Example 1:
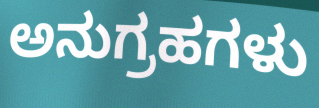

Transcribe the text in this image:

ಅನುಗ್ರಹಗಳು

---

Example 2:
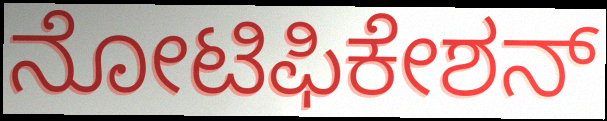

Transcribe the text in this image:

ನೋಟಿಫಿಕೇಶನ್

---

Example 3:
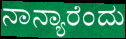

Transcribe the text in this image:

ನಾನ್ಯಾರೆಂದು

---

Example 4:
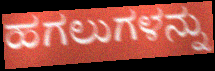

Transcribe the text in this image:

ಹಗಲುಗಳನ್ನು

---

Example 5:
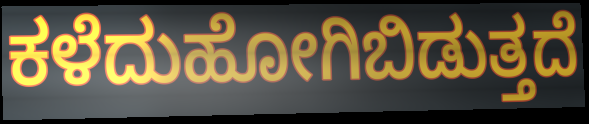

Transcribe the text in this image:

ಕಳೆದುಹೋಗಿಬಿಡುತ್ತದೆ